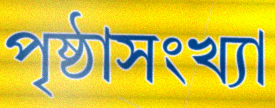
পৃষ্ঠাসংখ্যা